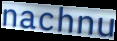
nachnu